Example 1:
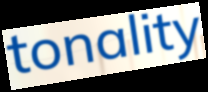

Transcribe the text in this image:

tonality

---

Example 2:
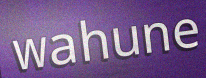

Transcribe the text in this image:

wahune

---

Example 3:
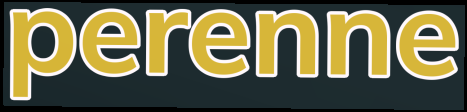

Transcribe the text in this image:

perenne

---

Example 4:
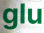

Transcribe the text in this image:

glu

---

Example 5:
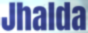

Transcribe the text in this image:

Jhalda